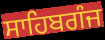
ਸਾਹਿਬਗੰਜ